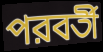
পরবর্তী